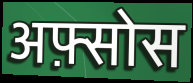
अफ़्सोस